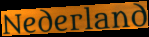
Nederland